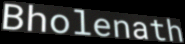
Bholenath